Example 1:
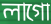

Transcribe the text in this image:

লাগো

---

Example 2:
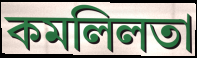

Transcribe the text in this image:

কমলিলতা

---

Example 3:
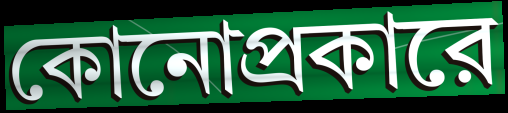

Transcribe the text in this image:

কোনোপ্রকারে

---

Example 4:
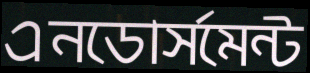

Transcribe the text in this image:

এনডোর্সমেন্ট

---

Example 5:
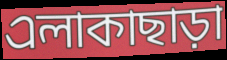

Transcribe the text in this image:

এলাকাছাড়া